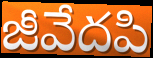
జీవేదపి